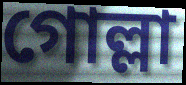
গোল্লা